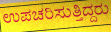
ಉಪಚರಿಸುತ್ತಿದ್ದರು